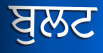
ਬੁਲਟ